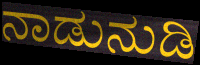
ನಾಡುನುಡಿ